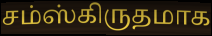
சம்ஸ்கிருதமாக